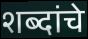
शब्दांचे